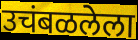
उचंबळलेला